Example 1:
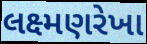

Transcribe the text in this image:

લક્ષ્મણરેખા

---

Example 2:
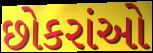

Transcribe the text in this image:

છોકરાંઓ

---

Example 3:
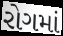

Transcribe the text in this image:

રોગમાં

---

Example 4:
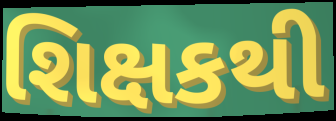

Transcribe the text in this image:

શિક્ષકથી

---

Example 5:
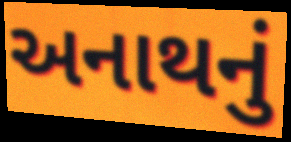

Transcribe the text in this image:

અનાથનું